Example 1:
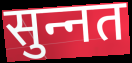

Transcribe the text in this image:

सुन्नत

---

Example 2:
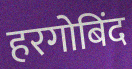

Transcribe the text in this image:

हरगोबिंद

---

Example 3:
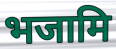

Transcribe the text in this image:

भजामि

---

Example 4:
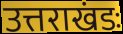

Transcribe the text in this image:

उत्तराखंडः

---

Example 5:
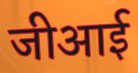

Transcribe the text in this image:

जीआई